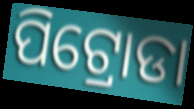
ପିଟ୍ରୋଡା